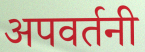
अपवर्तनी